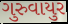
ગુરુવાયુર